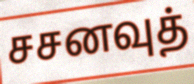
சசனவுத்